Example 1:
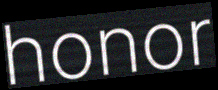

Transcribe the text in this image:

honor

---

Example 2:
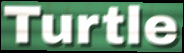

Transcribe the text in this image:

Turtle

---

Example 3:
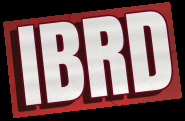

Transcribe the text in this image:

IBRD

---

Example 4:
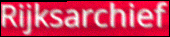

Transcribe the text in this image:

Rijksarchief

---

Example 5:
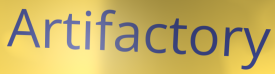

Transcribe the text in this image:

Artifactory